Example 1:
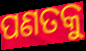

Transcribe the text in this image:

ପଣତକୁ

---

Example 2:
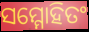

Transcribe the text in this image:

ସମ୍ମୋହିତଂ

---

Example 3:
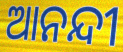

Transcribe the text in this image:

ଆନନ୍ଦୀ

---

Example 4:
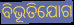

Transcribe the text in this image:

ବିଭୂତିଯୋଗ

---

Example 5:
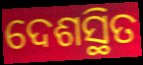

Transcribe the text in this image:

ଦେଶସ୍ଥିତ